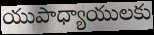
యుపాధ్యాయులకు